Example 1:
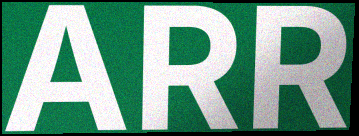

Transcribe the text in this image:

ARR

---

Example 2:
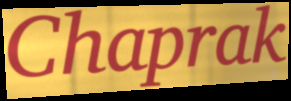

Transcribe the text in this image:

Chaprak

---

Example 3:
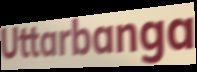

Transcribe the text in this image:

Uttarbanga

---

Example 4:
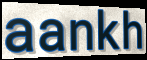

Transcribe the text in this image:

aankh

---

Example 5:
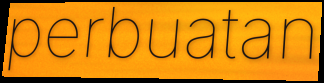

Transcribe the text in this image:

perbuatan